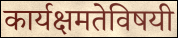
कार्यक्षमतेविषयी